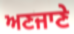
ਅਣਜਾਣੇ